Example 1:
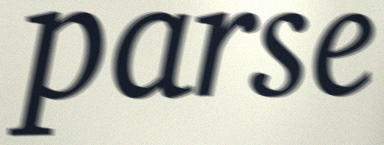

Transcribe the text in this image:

parse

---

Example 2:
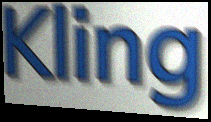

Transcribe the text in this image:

Kling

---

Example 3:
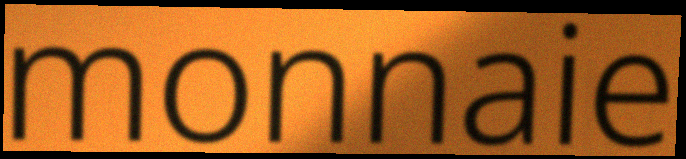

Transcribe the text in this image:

monnaie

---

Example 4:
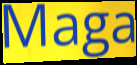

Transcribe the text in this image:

Maga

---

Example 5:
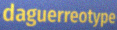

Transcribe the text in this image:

daguerreotype